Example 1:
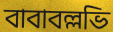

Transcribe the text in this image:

বাবাবল্লভি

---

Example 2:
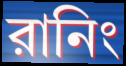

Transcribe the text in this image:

রানিং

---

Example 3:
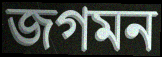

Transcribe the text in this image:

জগমন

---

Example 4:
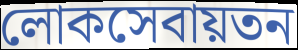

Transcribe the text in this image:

লোকসেবায়তন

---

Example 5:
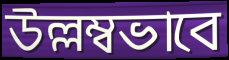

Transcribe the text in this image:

উল্লম্বভাবে